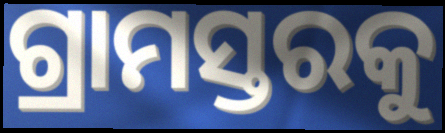
ଗ୍ରାମସ୍ତରକୁ